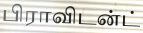
பிராவிடன்ட்